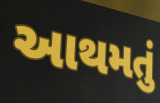
આથમતું